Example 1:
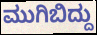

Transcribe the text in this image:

ಮುಗಿಬಿದ್ದು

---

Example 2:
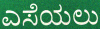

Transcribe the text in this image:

ಎಸೆಯಲು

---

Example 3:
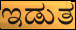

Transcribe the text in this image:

ಇಡುತ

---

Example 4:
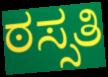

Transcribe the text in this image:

ಠಸ್ಸತಿ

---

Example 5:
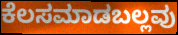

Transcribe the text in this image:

ಕೆಲಸಮಾಡಬಲ್ಲವು